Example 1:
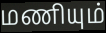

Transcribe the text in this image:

மணியும்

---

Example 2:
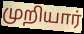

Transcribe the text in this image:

முறியார்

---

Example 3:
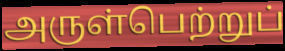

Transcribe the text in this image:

அருள்பெற்றுப்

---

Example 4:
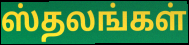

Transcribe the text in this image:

ஸ்தலங்கள்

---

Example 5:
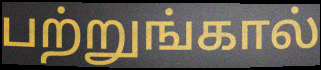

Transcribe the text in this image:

பற்றுங்கால்